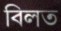
বিলত